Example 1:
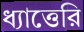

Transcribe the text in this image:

ধ্যাত্তেরি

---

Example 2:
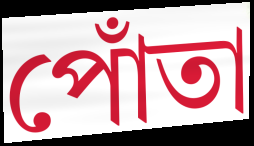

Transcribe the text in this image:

পোঁতা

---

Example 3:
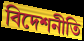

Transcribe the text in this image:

বিদেশনীতি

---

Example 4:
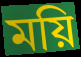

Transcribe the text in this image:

ময়ি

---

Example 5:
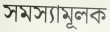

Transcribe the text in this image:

সমস্যামূলক